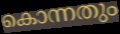
കൊന്നതും